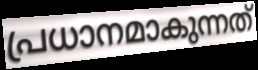
പ്രധാനമാകുന്നത്